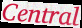
Central